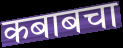
कबाबचा